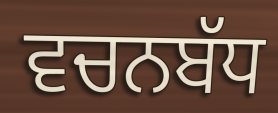
ਵਚਨਬੱਧ